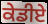
ਕੇਡੀਏ